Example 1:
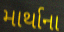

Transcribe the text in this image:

માર્થાના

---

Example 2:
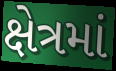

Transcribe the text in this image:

ક્ષેત્રમાં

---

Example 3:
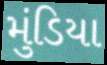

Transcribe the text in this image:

મુંડિયા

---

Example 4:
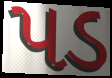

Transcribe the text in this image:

પડ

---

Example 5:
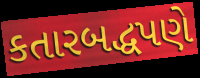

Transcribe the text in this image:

કતારબદ્ધપણે